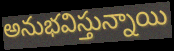
అనుభవిస్తున్నాయి